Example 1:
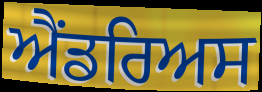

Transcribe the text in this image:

ਐਂਡਰਿਅਸ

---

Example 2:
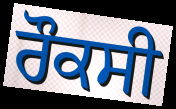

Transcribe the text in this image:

ਰੌਕਸੀ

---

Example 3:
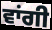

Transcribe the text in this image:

ਵਾਂਗੀ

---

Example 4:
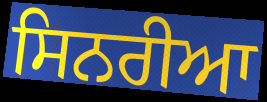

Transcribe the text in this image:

ਸਿਨਰੀਆ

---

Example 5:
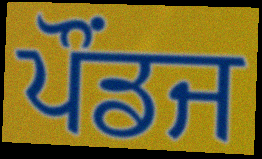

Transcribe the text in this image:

ਪੌਂਡਜ